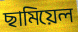
ছামিয়েল